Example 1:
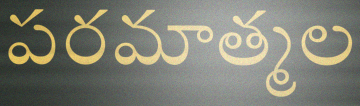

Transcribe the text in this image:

పరమాత్మల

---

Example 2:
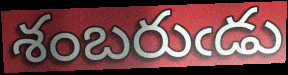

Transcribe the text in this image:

శంబరుఁడు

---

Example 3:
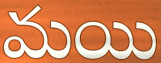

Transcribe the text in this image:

మయి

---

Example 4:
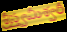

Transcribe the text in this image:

శ్రీస్త్వమీశ్వరీ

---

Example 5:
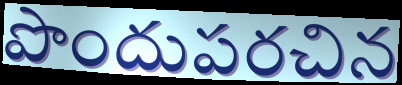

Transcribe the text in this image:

పొందుపరచిన